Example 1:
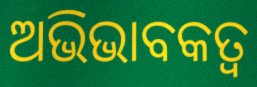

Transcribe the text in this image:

ଅଭିଭାବକତ୍ବ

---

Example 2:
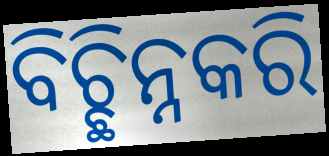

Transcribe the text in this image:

ବିଚ୍ଛିନ୍ନକରି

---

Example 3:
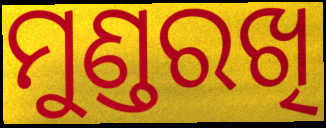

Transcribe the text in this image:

ମୁଣ୍ଡରଖି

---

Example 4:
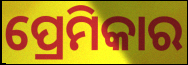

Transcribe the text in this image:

ପ୍ରେମିକାର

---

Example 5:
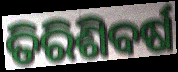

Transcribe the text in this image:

ତିରିଶିବର୍ଷ